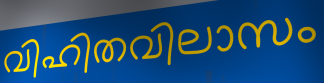
വിഹിതവിലാസം